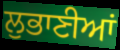
ਲੁਭਾਣੀਆਂ